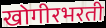
खोगीरभरती